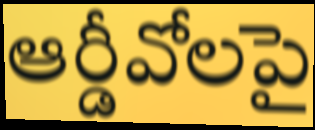
ఆర్డీవోలపై